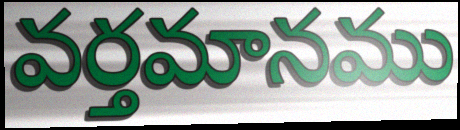
వర్తమానము